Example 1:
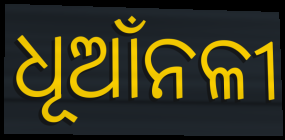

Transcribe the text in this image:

ଧୂଆଁନଳୀ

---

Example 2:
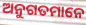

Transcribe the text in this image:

ଅନୁଗତମାନେ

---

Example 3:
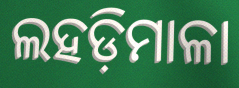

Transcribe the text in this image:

ଲହଡ଼ିମାଳା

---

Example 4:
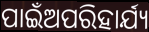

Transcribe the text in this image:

ପାଇଁଅପରିହାର୍ଯ୍ୟ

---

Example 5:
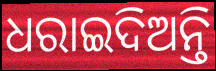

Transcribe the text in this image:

ଧରାଇଦିଅନ୍ତି